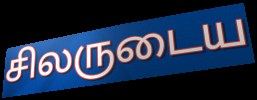
சிலருடைய